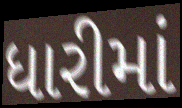
ધારીમાં